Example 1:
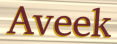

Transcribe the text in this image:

Aveek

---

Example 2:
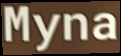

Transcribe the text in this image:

Myna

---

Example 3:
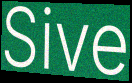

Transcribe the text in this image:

Sive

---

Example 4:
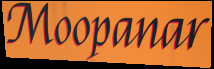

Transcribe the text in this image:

Moopanar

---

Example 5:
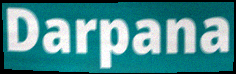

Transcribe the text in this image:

Darpana